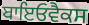
ਬਾਇਓਵੈਕਸ